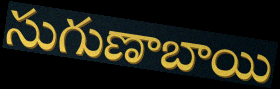
సుగుణాబాయి